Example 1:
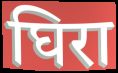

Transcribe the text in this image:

घिरा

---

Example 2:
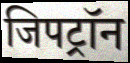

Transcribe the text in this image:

जिपट्रॉन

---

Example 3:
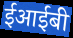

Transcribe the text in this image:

ईआईबी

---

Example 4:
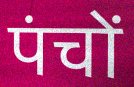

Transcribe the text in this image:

पंचों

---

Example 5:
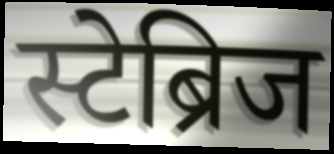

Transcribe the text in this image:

स्टेब्रिज